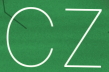
CZ